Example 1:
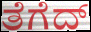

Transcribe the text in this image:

ತೆಗೆದ್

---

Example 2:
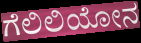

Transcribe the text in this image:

ಗೆಲಿಲಿಯೋನ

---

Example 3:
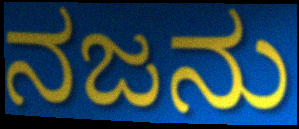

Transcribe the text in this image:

ನಜನು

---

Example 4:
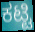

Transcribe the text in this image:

ಕಟ್ಟಿ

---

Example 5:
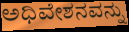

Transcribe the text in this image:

ಅಧಿವೇಶನವನ್ನು